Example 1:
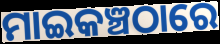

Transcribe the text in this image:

ମାଇକଞ୍ଚଠାରେ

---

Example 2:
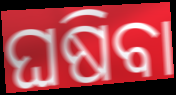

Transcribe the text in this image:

ଘଷିବା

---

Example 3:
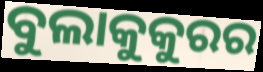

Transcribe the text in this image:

ବୁଲାକୁକୁରର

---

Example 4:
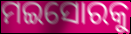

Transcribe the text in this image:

ମଇସୋରକୁ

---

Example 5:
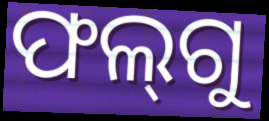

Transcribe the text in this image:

ଫଲ୍‌ଗୁ